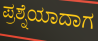
ಪ್ರಶ್ನೆಯಾದಾಗ